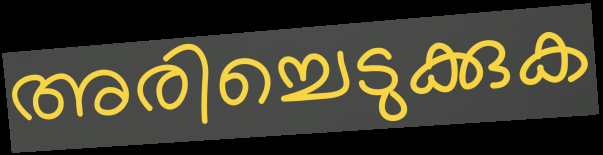
അരിച്ചെടുക്കുക